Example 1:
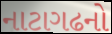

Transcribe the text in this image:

નાટાગઢનો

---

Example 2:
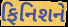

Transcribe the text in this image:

ફિનિશને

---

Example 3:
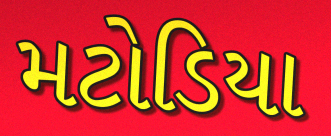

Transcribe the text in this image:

મટોડિયા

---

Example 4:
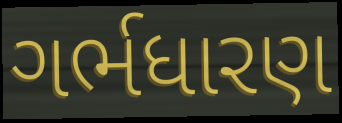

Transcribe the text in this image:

ગર્ભધારણ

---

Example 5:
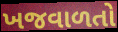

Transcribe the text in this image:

ખજવાળતો